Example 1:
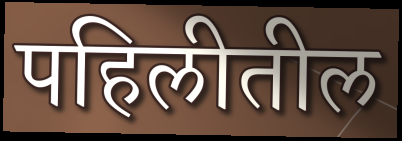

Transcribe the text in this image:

पहिलीतील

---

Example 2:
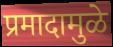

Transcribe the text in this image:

प्रमादामुळे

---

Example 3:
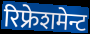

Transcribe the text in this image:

रिफ्रेशमेन्ट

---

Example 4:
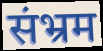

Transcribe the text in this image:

संभ्रम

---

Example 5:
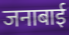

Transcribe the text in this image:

जनाबाई